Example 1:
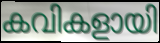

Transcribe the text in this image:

കവികളായി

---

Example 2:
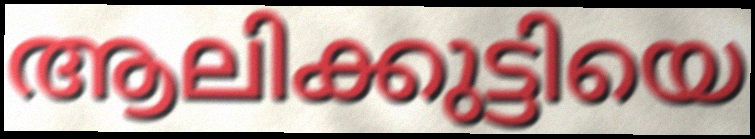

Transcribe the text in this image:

ആലിക്കുട്ടിയെ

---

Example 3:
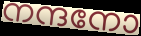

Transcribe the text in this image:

നന്ദനോ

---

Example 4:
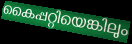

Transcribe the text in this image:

കൈപ്പറ്റിയെങ്കിലും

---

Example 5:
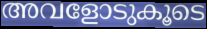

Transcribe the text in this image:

അവളോടുകൂടെ